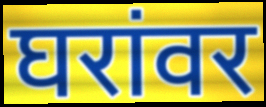
घरांवर